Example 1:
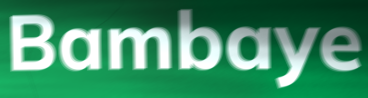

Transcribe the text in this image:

Bambaye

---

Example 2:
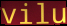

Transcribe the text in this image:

vilu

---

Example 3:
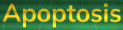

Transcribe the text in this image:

Apoptosis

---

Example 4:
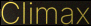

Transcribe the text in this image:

Climax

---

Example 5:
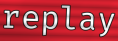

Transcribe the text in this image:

replay